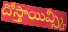
దోస్తాయివ్స్కీ